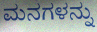
ಮನಗಳನ್ನು